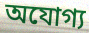
অযোগ্য